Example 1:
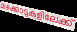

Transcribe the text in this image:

മഴക്കാടുകളിലേക്ക്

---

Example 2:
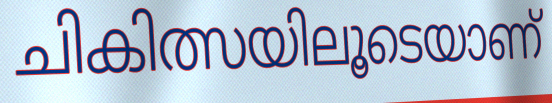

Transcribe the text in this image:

ചികിത്സയിലൂടെയാണ്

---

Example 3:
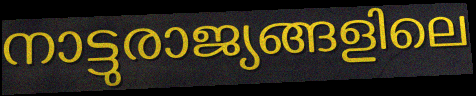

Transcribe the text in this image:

നാട്ടുരാജ്യങ്ങളിലെ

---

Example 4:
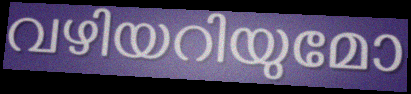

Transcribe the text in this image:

വഴിയറിയുമോ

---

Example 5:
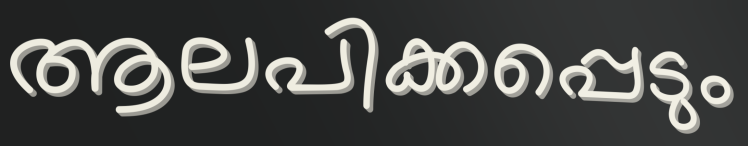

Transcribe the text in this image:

ആലപിക്കപ്പെടും